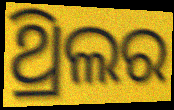
ଥ୍ରିଲର